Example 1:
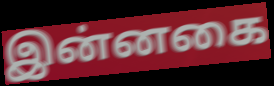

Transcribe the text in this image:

இன்னகை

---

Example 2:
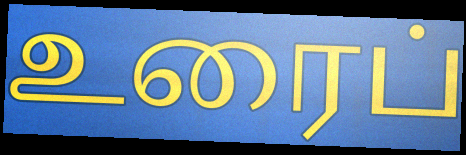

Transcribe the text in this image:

உரைப்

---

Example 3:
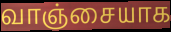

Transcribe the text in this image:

வாஞ்சையாக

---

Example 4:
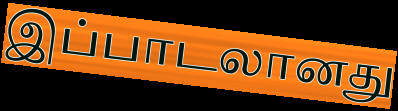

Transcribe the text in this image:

இப்பாடலானது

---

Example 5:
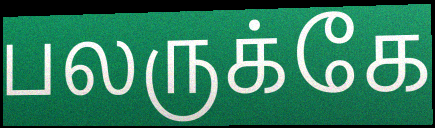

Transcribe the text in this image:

பலருக்கே